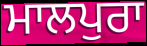
ਮਾਲਪੁਰਾ